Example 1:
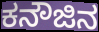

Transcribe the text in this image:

ಕನೌಜಿನ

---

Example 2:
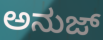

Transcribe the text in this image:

ಅನುಜ್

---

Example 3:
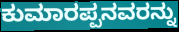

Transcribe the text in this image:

ಕುಮಾರಪ್ಪನವರನ್ನು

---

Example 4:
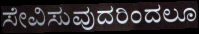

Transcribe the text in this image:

ಸೇವಿಸುವುದರಿಂದಲೂ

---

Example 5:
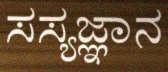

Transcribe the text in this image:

ಸಸ್ಯಜ್ಞಾನ